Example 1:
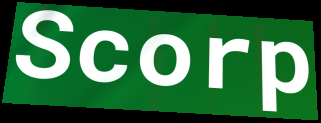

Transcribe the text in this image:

Scorp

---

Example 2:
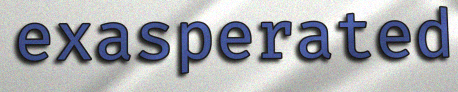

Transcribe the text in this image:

exasperated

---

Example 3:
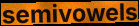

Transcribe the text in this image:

semivowels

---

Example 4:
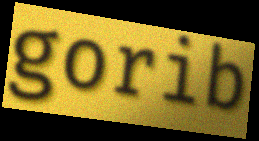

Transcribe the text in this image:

gorib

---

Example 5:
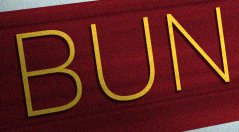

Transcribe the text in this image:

BUN